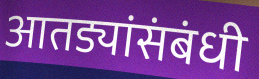
आतड्यांसंबंधी